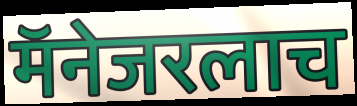
मॅनेजरलाच